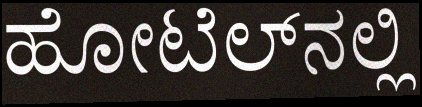
ಹೋಟೆಲ್‌ನಲ್ಲಿ